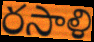
రసాళి